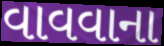
વાવવાના